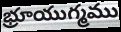
భ్రూయుగ్మము